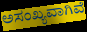
ಅಸಂಖ್ಯವಾಗಿವೆ